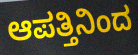
ಆಪತ್ತಿನಿಂದ